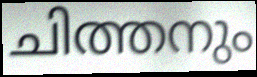
ചിത്തനും